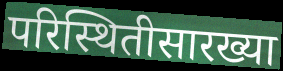
परिस्थितीसारख्या